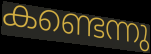
കണ്ടെന്നു